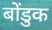
बोंडुक